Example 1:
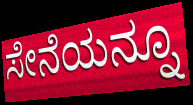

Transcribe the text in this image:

ಸೇನೆಯನ್ನೂ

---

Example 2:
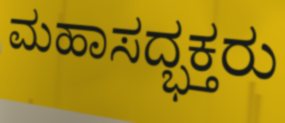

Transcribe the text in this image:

ಮಹಾಸದ್ಭಕ್ತರು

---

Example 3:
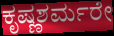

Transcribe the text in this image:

ಕೃಷ್ಣಶರ್ಮರೇ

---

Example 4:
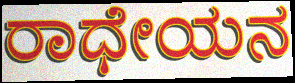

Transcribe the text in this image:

ರಾಧೇಯನ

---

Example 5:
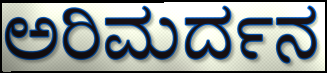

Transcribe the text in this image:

ಅರಿಮರ್ದನ